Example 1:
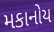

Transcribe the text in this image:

મકાનોય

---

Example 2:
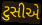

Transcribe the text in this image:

ટુસીએ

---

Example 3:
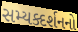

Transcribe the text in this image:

સમ્યક્દર્શનનો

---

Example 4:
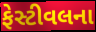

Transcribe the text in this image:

ફેસ્ટીવલના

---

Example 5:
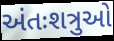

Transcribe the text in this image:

અંતઃશત્રુઓ